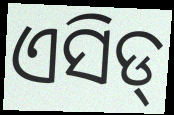
ଏସିଡ୍